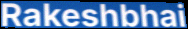
Rakeshbhai